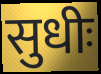
सुधीः